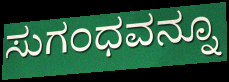
ಸುಗಂಧವನ್ನೂ